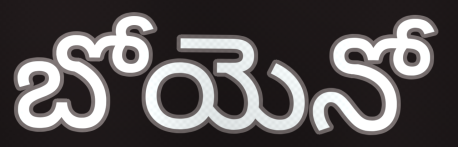
బోయెనో